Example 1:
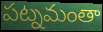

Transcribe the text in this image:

పట్నమంతా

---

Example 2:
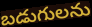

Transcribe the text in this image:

బడుగులను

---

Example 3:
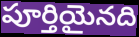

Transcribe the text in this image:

పూర్తియైనది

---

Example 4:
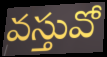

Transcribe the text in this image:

వస్తువో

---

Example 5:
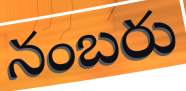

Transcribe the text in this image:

నంబరు